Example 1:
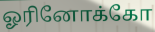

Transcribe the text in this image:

ஓரினோக்கோ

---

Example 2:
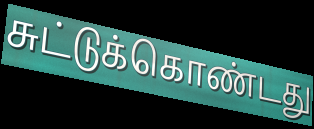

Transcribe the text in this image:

சுட்டுக்கொண்டது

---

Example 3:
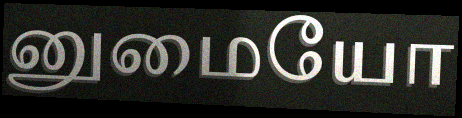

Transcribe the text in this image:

னுமையோ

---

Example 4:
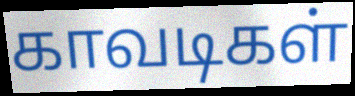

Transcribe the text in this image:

காவடிகள்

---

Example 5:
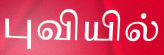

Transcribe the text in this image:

புவியில்